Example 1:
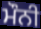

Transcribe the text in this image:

ਮੌਨੀ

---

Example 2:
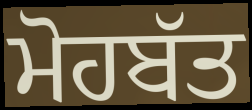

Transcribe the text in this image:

ਮੋਹਬੱਤ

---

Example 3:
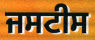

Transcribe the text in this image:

ਜਸਟੀਸ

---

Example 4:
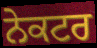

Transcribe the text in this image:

ਨੇਕਟਰ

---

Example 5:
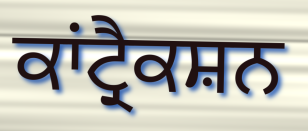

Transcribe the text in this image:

ਕਾਂਟ੍ਰੈਕਸ਼ਨ